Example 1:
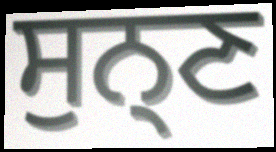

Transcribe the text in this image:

ਸੁਨ੍ਣ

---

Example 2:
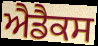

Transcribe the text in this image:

ਐਡੈਕਸ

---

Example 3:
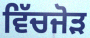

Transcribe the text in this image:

ਵਿੱਚਜੋੜ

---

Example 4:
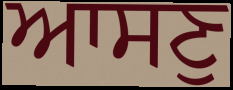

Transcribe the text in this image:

ਆਸਣੁ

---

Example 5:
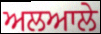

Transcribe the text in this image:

ਅਲਆਲੇ